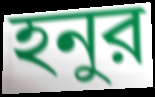
হনুর